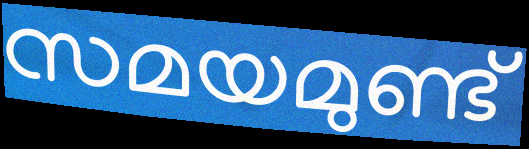
സമയമുണ്ട്